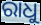
ରାଧୁ